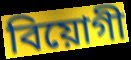
বিয়োগী